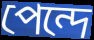
পেন্দে